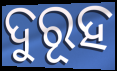
ଦୁରୂହ